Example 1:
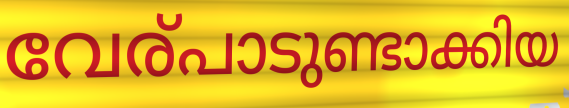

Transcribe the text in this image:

വേര്പാടുണ്ടാക്കിയ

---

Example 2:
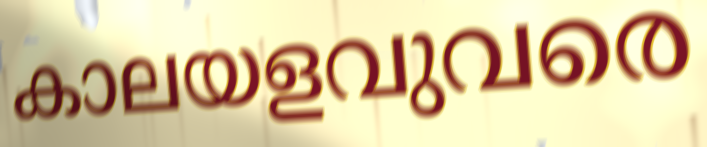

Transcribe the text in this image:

കാലയളവുവരെ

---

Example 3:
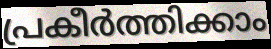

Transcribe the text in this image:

പ്രകീർത്തിക്കാം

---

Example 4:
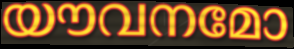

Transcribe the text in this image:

യൗവനമോ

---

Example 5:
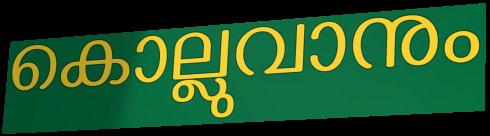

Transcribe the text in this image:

കൊല്ലുവാനും